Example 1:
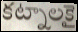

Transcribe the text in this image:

కట్నాలకై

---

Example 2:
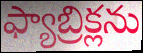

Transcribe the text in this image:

ఫ్యాబ్రిక్లను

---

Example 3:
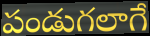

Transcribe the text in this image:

పండుగలాగే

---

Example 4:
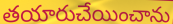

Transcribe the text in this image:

తయారుచేయించాను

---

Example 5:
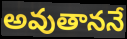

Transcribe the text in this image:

అవుతాననే